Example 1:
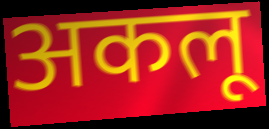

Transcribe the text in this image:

अकलू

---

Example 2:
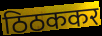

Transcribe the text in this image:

ठिठककर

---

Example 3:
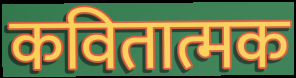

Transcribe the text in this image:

कवितात्मक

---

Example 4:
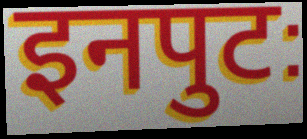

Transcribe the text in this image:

इनपुटः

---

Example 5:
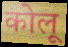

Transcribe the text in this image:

कोलू